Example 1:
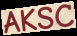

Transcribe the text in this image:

AKSC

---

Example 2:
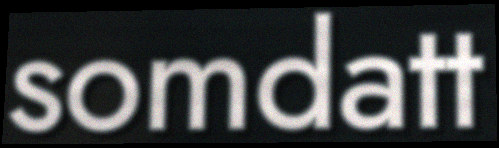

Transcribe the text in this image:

somdatt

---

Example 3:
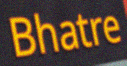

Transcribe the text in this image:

Bhatre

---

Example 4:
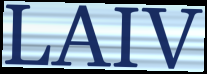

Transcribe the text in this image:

LAIV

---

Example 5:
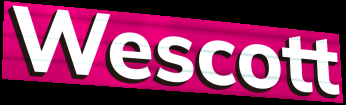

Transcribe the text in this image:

Wescott